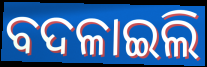
ବଦଳାଇଲି